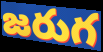
జరుగ